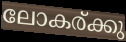
ലോകര്ക്കു